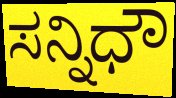
ಸನ್ನಿಧೌ